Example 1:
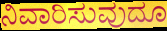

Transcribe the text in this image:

ನಿವಾರಿಸುವುದೂ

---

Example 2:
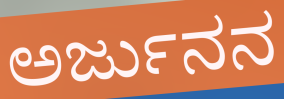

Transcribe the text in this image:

ಅರ್ಜುನನ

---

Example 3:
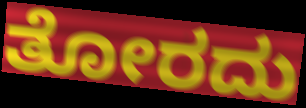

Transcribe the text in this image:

ತೋರದು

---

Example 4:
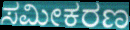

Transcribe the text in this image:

ಸಮೀಕರಣ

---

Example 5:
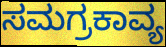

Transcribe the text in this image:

ಸಮಗ್ರಕಾವ್ಯ